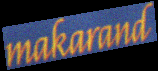
makarand